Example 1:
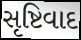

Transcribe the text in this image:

સૃષ્ટિવાદ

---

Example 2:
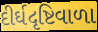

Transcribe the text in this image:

દીર્ઘદૃષ્ટિવાળા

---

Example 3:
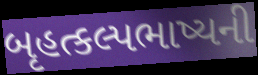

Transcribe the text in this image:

બૃહત્કલ્પભાષ્યની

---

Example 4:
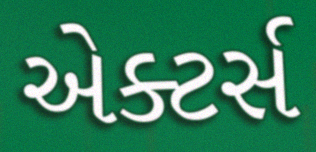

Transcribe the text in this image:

એક્ટર્સ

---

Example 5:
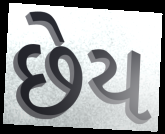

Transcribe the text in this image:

છેય